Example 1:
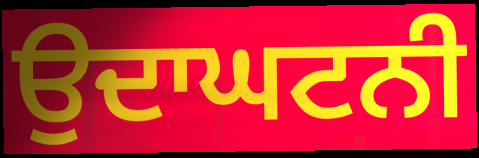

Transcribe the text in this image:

ਉਦਾਘਟਨੀ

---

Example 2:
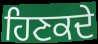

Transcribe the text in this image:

ਹਿਣਕਦੇ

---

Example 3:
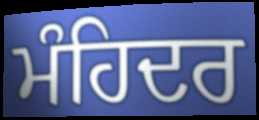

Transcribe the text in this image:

ਮੰਹਿਦਰ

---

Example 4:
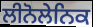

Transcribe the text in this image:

ਲੀਨੋਲੇਨਿਕ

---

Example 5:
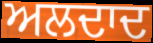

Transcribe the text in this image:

ਅਲਦਾਦ